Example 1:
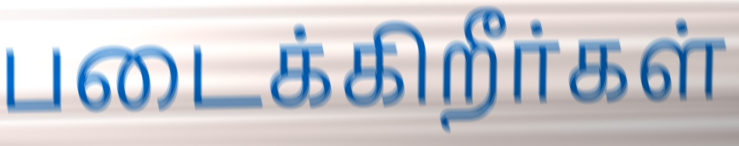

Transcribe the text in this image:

படைக்கிறீர்கள்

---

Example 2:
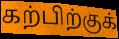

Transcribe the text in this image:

கற்பிற்குக்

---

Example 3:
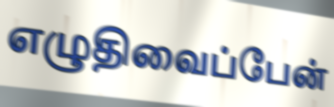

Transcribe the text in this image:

எழுதிவைப்பேன்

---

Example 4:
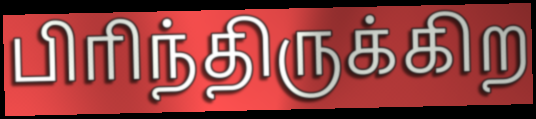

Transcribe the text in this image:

பிரிந்திருக்கிற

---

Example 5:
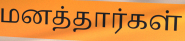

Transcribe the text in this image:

மனத்தார்கள்